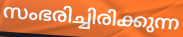
സംഭരിച്ചിരിക്കുന്ന